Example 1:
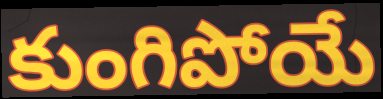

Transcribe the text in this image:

కుంగిపోయే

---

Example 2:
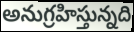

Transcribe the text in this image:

అనుగ్రహిస్తున్నది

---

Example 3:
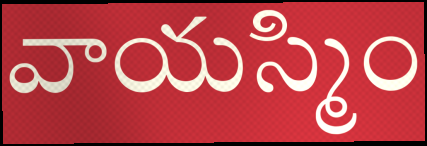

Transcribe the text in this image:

వాయస్మిం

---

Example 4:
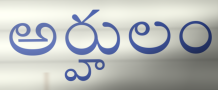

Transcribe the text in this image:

అర్హులం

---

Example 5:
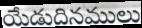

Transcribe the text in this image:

యేడుదినములు